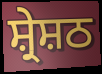
ਸ਼੍ਰੇਸ਼ਠ